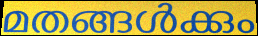
മതങ്ങൾക്കും